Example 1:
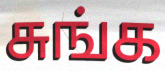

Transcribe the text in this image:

சுங்க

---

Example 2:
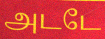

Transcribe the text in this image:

அடடே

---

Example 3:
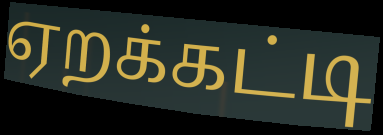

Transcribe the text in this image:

ஏறக்கட்டி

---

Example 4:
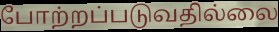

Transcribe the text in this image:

போற்றப்படுவதில்லை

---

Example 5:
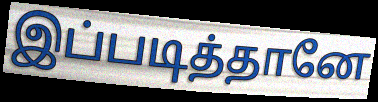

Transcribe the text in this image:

இப்படித்தானே